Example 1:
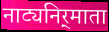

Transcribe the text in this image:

नाट्यनिर्माता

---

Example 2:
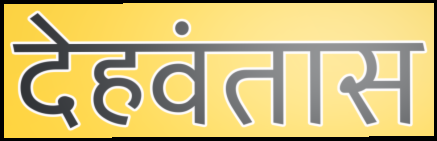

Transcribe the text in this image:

देहवंतास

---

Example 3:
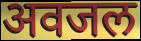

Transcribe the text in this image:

अवजल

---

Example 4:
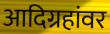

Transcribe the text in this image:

आदिग्रहांवर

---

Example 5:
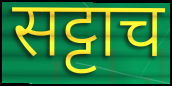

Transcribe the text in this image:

सट्टाच